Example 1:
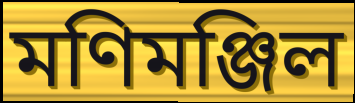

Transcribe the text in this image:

মণিমঞ্জিল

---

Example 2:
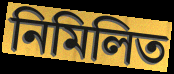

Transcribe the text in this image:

নিমিলিত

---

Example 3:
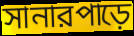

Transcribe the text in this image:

সানারপাড়ে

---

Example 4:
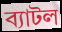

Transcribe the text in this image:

ব্যাটল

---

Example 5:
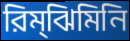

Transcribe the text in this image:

রিম্‌ঝিমিনি